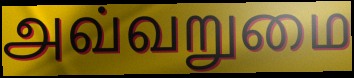
அவ்வறுமை